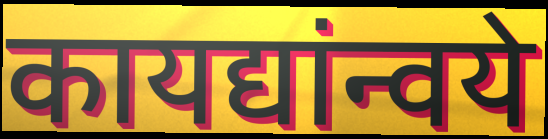
कायद्यांन्वये